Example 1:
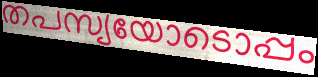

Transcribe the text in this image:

തപസ്യയോടൊപ്പം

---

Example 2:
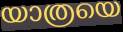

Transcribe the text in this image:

യാത്രയെ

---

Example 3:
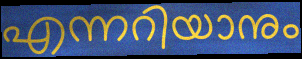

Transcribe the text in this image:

എന്നറിയാനും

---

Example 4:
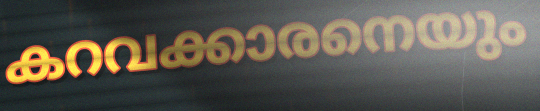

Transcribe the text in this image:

കറവക്കാരനെയും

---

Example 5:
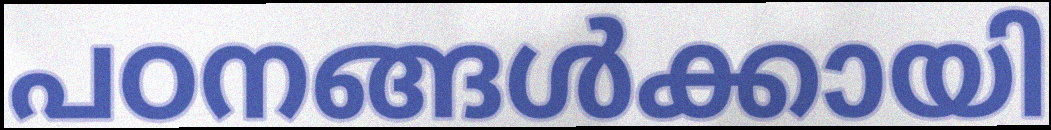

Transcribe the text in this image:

പഠനങ്ങൾക്കായി